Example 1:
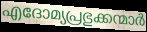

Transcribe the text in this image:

എദോമ്യപ്രഭുക്കന്മാർ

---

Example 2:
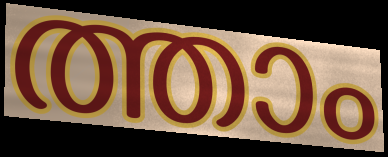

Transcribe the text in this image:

ത്താം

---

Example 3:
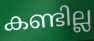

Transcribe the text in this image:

കണ്ടില്ല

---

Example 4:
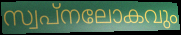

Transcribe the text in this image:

സ്വപ്നലോകവും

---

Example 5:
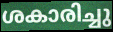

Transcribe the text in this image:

ശകാരിച്ചു